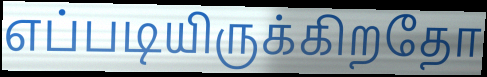
எப்படியிருக்கிறதோ